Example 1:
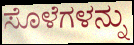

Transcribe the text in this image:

ಸೊಳೆಗಳನ್ನು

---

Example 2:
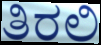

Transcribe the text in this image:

ತಿರಲಿ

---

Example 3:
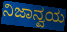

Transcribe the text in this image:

ನಿಜಾನ್ವಯ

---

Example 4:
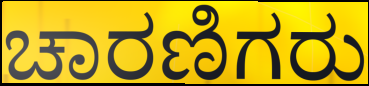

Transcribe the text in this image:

ಚಾರಣಿಗರು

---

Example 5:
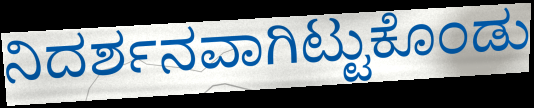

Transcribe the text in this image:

ನಿದರ್ಶನವಾಗಿಟ್ಟುಕೊಂಡು